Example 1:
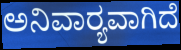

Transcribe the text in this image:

ಅನಿವಾರ‍್ಯವಾಗಿದೆ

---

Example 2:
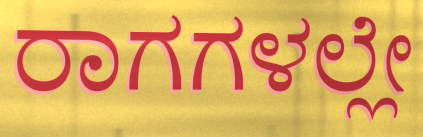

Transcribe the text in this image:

ರಾಗಗಳಲ್ಲೇ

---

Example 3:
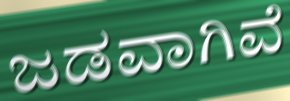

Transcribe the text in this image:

ಜಡವಾಗಿವೆ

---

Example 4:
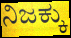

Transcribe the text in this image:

ನಿಜಕ್ಕು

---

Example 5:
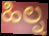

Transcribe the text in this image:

ಹಿಲ್ನ